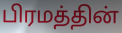
பிரமத்தின்